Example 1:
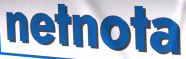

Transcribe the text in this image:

netnota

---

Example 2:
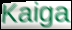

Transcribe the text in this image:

Kaiga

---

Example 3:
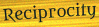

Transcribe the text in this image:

Reciprocity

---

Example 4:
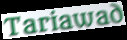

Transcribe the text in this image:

Tariawad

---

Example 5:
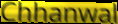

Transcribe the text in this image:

Chhanwal